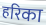
हरिका